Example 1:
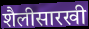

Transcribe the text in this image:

शैलीसारखी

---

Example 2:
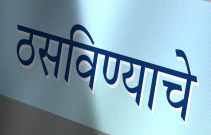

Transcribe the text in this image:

ठसविण्याचे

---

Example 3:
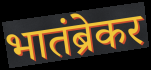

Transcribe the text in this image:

भातंब्रेकर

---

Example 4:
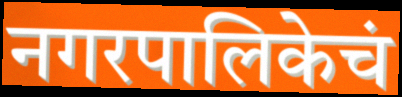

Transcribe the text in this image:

नगरपालिकेचं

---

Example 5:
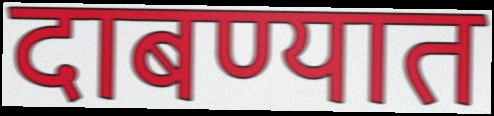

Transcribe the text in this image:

दाबण्यात